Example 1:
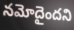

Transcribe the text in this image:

నమోదైందని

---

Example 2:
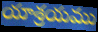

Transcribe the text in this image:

యాశ్రయము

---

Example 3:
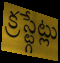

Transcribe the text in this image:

క్రస్ట్గేట్లు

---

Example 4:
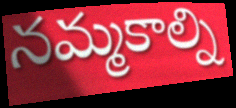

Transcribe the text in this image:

నమ్మకాల్ని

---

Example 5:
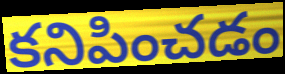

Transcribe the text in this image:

కనిపించడం